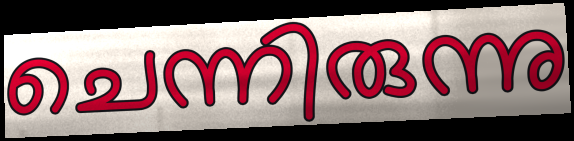
ചെന്നിരുന്നു